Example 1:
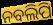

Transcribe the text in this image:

ନବଲିପି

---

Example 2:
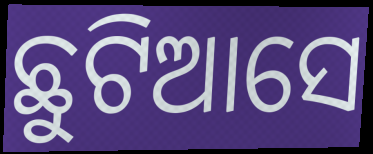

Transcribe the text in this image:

ଛୁଟିଆସେ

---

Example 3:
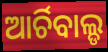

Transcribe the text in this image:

ଆର୍ଚିବାଲ୍ଡ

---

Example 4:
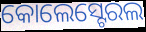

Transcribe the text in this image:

କୋଲେସ୍ଟେରଲ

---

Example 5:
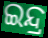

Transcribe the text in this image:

ଇନ୍ଦ୍ର